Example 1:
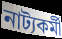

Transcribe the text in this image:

নাট্যকৰ্মী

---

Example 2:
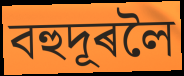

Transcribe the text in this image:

বহুদূৰলৈ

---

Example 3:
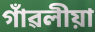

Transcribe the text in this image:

গাঁৱলীয়া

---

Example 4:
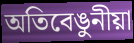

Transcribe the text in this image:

অতিবেঙুনীয়া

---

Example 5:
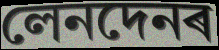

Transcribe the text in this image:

লেনদেনৰ